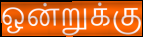
ஒன்றுக்கு